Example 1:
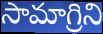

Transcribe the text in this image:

సామాగ్రిని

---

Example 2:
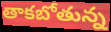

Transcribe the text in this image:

తాకబోతున్న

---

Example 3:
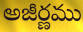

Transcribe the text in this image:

అజీర్ణము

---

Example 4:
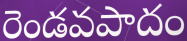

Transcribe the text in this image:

రెండవపాదం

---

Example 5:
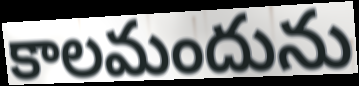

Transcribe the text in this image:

కాలమందును